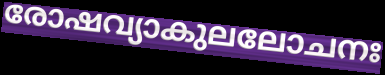
രോഷവ്യാകുലലോചനഃ